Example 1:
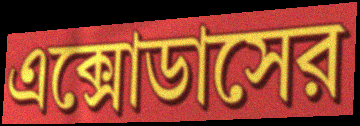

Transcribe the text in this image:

এক্সোডাসের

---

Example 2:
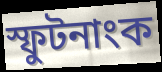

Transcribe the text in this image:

স্ফুটনাংক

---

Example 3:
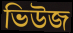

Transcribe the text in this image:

ভিউজ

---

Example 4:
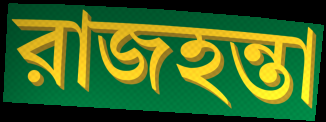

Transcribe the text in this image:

রাজহন্তা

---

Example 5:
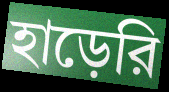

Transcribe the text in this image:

হাড়েরি